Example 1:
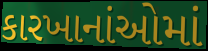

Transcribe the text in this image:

કારખાનાંઓમાં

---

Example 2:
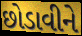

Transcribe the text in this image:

છોડાવીને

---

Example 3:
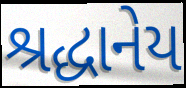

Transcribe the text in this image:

શ્રદ્ધાનેય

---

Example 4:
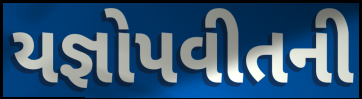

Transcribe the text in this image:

યજ્ઞોપવીતની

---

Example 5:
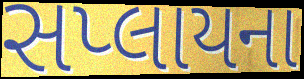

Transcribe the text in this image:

સપ્લાયના